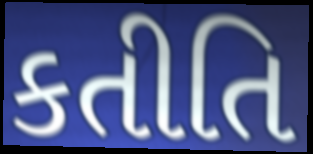
કતીતિ